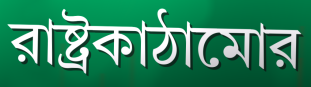
রাষ্ট্রকাঠামোর